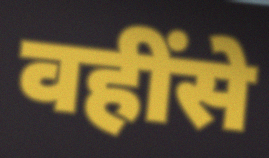
वहींसे